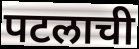
पटलाची